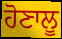
ਹੋਣਾਲੂ